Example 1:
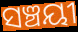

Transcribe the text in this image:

ସଞ୍ଚୟୀ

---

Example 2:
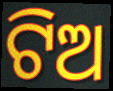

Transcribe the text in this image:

ଟିଅ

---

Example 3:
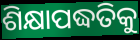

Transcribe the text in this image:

ଶିକ୍ଷାପଦ୍ଧତିକୁ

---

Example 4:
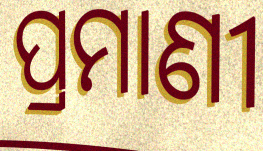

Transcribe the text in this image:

ପ୍ରମାଣୀ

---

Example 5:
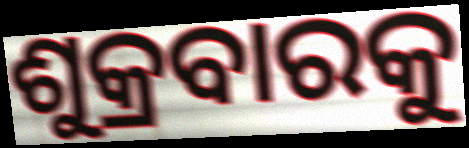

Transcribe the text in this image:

ଶୁକ୍ରବାରକୁ